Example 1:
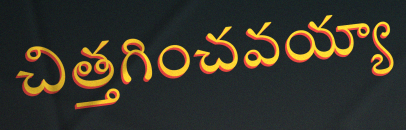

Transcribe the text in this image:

చిత్తగించవయ్యా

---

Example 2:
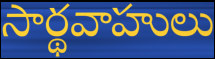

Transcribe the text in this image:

సార్థవాహులు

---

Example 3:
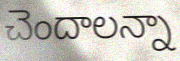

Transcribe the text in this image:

చెందాలన్నా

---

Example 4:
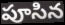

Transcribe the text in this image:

పూసిన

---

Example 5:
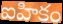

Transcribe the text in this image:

ఐహికం